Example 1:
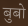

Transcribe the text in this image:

बुबो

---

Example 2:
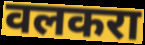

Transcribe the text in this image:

वलकरा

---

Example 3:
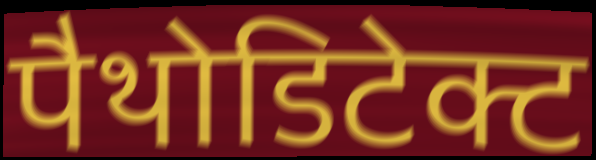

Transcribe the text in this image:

पैथोडिटेक्ट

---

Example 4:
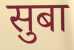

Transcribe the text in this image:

सुबा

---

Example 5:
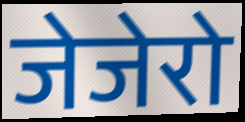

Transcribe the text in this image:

जेजेरो